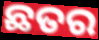
ଛତର